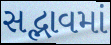
સદ્ભાવમાં